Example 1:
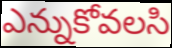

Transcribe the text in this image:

ఎన్నుకోవలసి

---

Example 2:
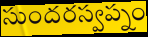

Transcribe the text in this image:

సుందరస్వప్నం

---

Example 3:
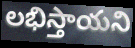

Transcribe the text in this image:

లభిస్తాయని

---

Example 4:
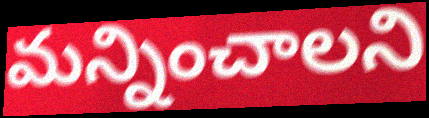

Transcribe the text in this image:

మన్నించాలని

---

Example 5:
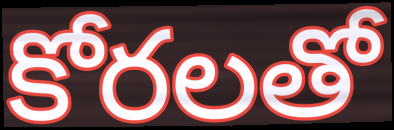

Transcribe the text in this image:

కోరలతో